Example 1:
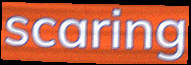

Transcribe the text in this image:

scaring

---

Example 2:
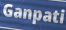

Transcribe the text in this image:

Ganpati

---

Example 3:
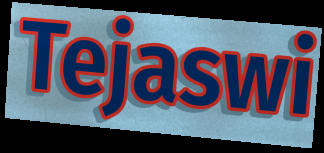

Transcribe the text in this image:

Tejaswi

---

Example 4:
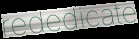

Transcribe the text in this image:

rededicate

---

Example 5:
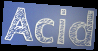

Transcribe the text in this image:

Acid